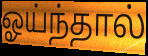
ஓய்ந்தால்